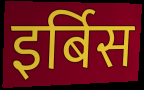
इर्बिस